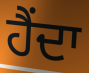
ਹੈਂਦਾ